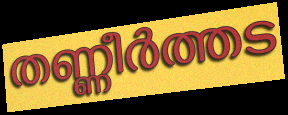
തണ്ണീർത്തട